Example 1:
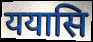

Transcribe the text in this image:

ययासि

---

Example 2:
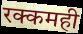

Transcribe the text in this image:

रक्कमही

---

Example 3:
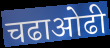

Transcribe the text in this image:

चढाओढी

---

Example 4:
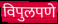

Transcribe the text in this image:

विपुलपणे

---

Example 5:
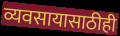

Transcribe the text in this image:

व्यवसायासाठीही